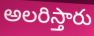
అలరిస్తారు